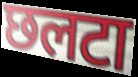
छलटा